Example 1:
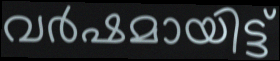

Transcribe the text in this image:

വർഷമായിട്ട്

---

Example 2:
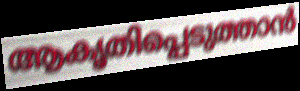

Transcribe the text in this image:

ആകൃതിപ്പെടുത്താൻ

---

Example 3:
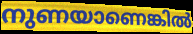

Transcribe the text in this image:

നുണയാണെങ്കിൽ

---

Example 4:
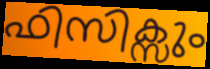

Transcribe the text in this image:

ഫിസിക്സും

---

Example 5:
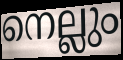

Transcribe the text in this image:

നെല്ലും